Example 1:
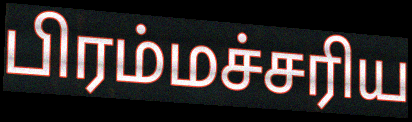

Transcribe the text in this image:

பிரம்மச்சரிய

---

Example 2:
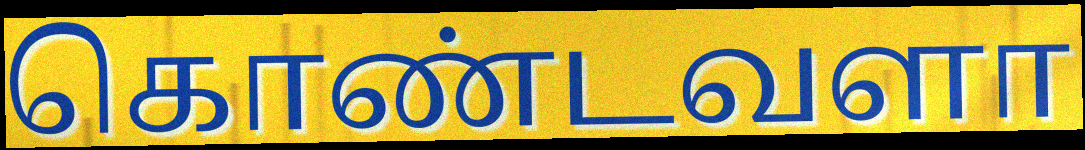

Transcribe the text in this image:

கொண்டவளா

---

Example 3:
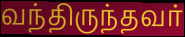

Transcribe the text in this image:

வந்திருந்தவர்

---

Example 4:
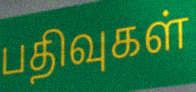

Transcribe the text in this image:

பதிவுகள்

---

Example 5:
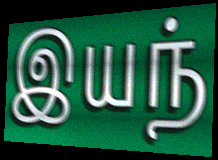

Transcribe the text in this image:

இயந்